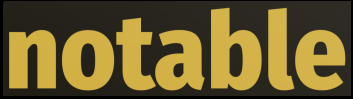
notable